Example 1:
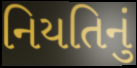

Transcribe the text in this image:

નિયતિનું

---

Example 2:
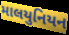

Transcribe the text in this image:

માલયુનિયન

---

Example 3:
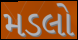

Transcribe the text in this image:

મડલો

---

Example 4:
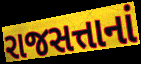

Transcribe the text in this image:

રાજસત્તાનાં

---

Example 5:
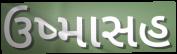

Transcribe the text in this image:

ઉષ્માસહ